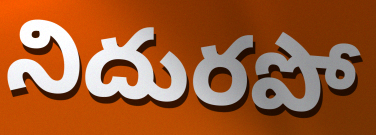
నిదురపో